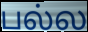
பல்ல